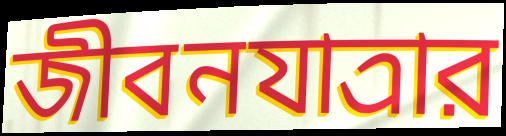
জীবনযাত্রার